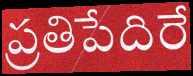
ప్రతిపేదిరే